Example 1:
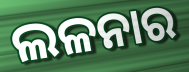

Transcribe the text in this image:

ଲଳନାର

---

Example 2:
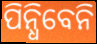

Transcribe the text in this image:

ପିନ୍ଧିବେନି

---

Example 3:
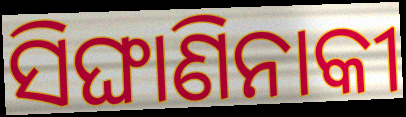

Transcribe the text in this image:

ସିଙ୍ଘାଣିନାକୀ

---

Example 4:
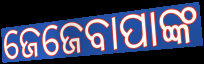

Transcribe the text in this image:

ଜେଜେବାପାଙ୍କ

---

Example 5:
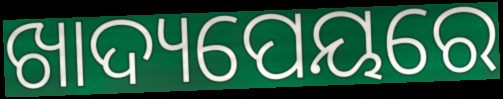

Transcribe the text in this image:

ଖାଦ୍ୟପେୟରେ